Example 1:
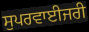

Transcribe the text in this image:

ਸੁਪਰਵਾਈਜਰੀ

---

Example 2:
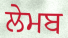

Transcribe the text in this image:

ਲੇਮਬ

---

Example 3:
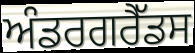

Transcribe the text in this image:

ਅੰਡਰਗਰੈੱਡਸ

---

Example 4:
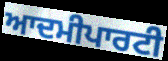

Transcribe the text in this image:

ਆਦਮੀਪਾਰਟੀ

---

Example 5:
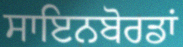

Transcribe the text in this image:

ਸਾਇਨਬੋਰਡਾਂ